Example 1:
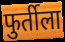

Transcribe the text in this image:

फुर्तीला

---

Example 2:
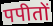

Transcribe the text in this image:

पपीतों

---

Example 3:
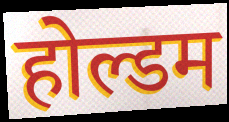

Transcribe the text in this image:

होल्डम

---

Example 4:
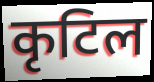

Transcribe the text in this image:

कृटिल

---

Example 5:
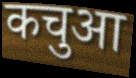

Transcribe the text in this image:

कचुआ